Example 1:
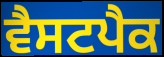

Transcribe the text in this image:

ਵੈਸਟਪੈਕ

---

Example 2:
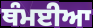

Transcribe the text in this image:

ਥੰਮਈਆ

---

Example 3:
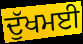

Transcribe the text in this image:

ਦੁੱਖਮਈ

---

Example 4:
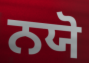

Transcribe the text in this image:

ਨਯੋ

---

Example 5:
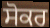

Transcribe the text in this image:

ਸੋਕਰ